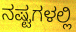
ನಷ್ಟಗಳಲ್ಲಿ